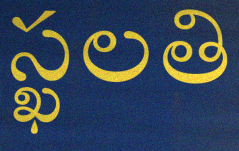
స్ఖలతి